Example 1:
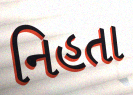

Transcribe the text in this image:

નિહતા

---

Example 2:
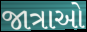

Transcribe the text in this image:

જાત્રાઓ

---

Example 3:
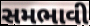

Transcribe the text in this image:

સમભાવી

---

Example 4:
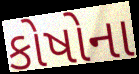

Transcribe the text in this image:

કોષોના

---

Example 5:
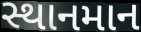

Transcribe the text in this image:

સ્થાનમાન